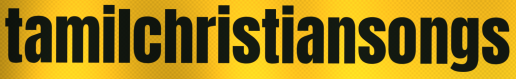
tamilchristiansongs